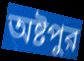
অষ্টপুর